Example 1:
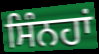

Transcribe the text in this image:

ਸਿੰਨਹਾਂ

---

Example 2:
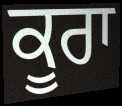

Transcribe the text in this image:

ਕੂਰਾ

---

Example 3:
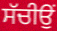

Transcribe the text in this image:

ਸੱਚੀਉਂ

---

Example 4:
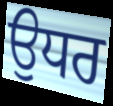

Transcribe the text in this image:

ਉਧਰ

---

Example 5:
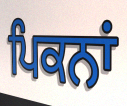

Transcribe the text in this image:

ਪਿਕਨਾਂ